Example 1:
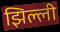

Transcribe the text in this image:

झिल्ली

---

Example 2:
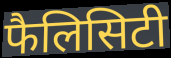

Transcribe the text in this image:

फैलिसिटी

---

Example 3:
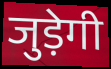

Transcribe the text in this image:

जुड़ेगी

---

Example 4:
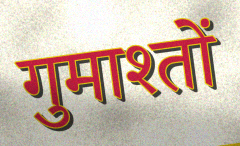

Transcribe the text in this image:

गुमाश्तों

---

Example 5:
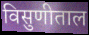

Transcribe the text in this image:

विसुणीताल